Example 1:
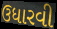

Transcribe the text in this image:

ઉધારવી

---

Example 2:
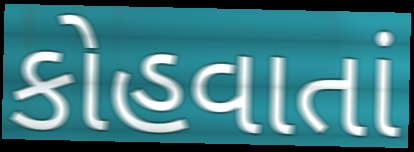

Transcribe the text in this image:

કોહવાતાં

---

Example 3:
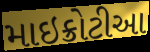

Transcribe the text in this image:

માઇક્રોટીઆ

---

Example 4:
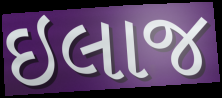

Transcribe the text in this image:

ઇલાજ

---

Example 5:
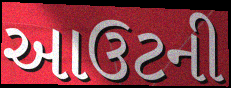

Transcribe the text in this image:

આઉટની